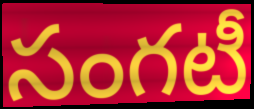
సంగటీ